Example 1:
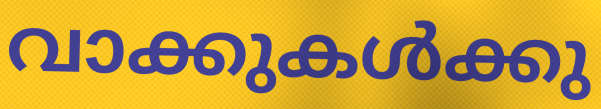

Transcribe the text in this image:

വാക്കുകൾക്കു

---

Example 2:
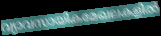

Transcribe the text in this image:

വ്യാവസായികമേഖലകളിൽ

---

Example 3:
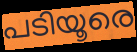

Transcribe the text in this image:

പടിയൂരെ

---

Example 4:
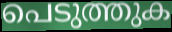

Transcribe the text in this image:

പെടുത്തുക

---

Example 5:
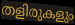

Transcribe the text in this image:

തളിരുകളും